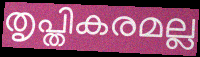
തൃപ്തികരമല്ല